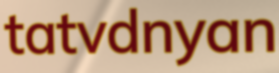
tatvdnyan